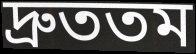
দ্রুততম